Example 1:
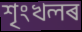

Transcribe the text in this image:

শৃংখলৰ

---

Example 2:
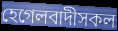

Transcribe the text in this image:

হেগেলবাদীসকল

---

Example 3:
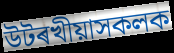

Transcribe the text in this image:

উটৰখীয়াসকলক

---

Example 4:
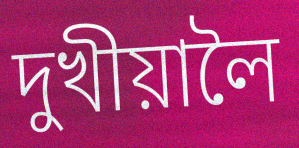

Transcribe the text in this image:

দুখীয়ালৈ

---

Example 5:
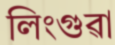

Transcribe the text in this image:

লিংগুৱা